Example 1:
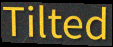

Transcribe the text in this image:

Tilted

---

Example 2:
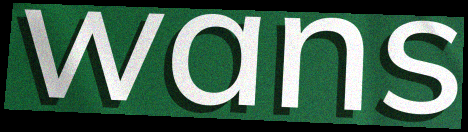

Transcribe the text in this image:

wans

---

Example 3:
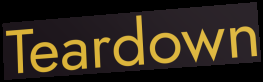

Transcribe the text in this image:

Teardown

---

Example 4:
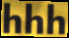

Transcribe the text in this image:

hhh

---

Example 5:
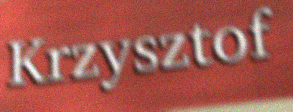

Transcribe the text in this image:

Krzysztof